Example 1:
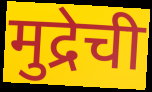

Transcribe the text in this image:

मुद्रेची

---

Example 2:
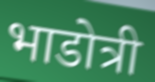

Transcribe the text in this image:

भाडोत्री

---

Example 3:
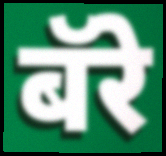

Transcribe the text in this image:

बॅरे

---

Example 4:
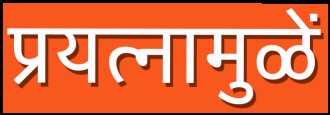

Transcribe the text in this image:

प्रयत्नामुळें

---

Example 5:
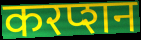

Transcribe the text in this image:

करप्शन